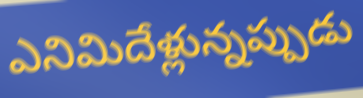
ఎనిమిదేళ్లున్నప్పుడు